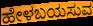
ಹೇಳಬಯಸುವ